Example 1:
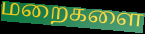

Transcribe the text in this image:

மறைகளை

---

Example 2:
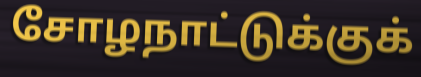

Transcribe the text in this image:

சோழநாட்டுக்குக்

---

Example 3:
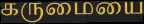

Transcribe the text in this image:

கருமையை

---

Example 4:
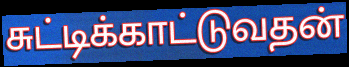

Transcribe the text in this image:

சுட்டிக்காட்டுவதன்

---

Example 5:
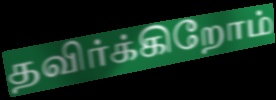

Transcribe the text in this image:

தவிர்க்கிறோம்